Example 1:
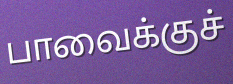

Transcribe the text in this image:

பாவைக்குச்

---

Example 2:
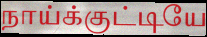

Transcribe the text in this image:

நாய்க்குட்டியே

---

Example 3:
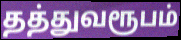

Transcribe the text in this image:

தத்துவரூபம்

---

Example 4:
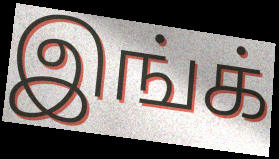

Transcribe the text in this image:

இங்க்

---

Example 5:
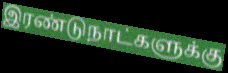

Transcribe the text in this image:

இரண்டுநாட்களுக்கு